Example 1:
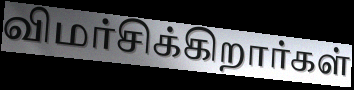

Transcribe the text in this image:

விமர்சிக்கிறார்கள்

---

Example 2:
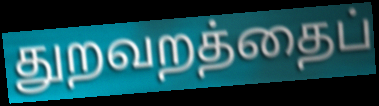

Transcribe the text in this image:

துறவறத்தைப்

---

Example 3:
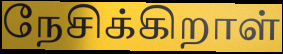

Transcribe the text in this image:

நேசிக்கிறாள்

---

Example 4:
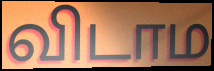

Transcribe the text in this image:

விடாம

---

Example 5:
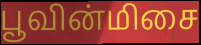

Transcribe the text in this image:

பூவின்மிசை